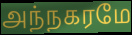
அந்நகரமே